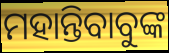
ମହାନ୍ତିବାବୁଙ୍କ